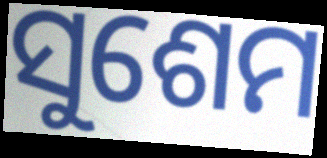
ସୁଶେମ